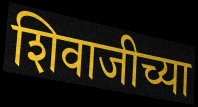
शिवाजीच्या